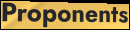
Proponents